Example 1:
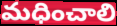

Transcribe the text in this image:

మధించాలి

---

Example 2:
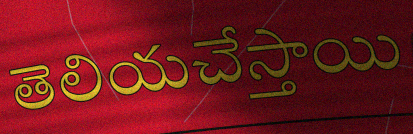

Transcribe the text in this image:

తెలియచేస్తాయి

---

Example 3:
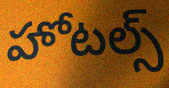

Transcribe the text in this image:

హోటల్స్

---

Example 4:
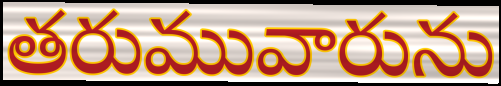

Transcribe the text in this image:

తరుమువారును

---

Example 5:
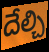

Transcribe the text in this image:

దేల్చి